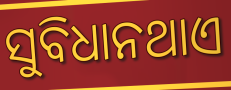
ସୁବିଧାନଥାଏ